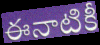
ఈనాటికీ